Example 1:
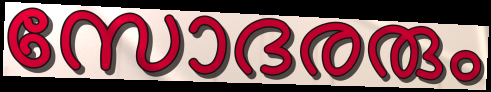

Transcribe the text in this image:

സോദരരും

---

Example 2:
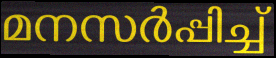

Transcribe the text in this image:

മനസർപ്പിച്ച്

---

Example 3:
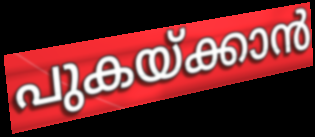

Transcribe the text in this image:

പുകയ്ക്കാൻ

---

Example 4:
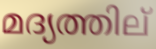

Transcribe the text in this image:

മദ്യത്തില്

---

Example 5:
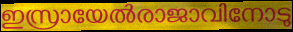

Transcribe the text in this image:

ഇസ്രായേൽരാജാവിനോടു